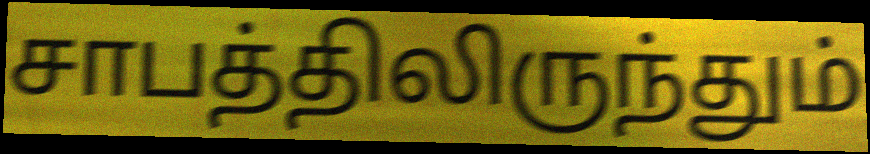
சாபத்திலிருந்தும்